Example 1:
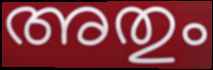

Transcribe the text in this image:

അതും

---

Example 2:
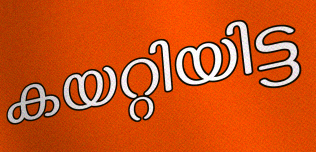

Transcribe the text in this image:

കയറ്റിയിട്ട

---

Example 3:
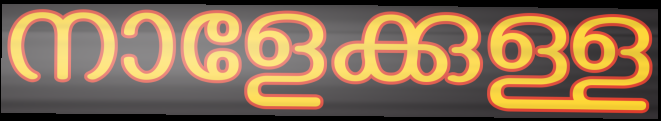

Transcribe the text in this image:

നാളേക്കുള്ള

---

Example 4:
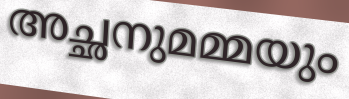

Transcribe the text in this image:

അച്ഛനുമമ്മയും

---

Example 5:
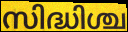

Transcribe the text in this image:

സിദ്ധിശ്ച